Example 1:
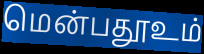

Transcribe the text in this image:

மென்பதூஉம்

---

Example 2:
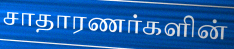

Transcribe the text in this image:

சாதாரணர்களின்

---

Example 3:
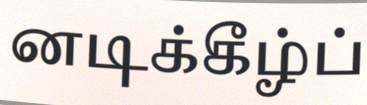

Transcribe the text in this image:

னடிக்கீழ்ப்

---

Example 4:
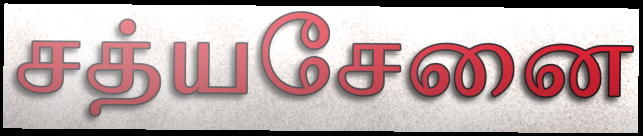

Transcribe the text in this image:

சத்யசேனை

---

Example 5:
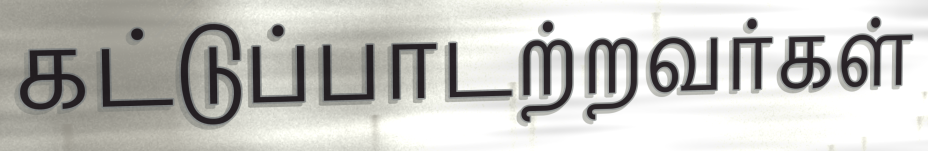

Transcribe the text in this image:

கட்டுப்பாடற்றவர்கள்